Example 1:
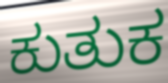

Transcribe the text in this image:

ಕುತುಕ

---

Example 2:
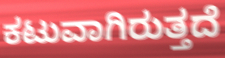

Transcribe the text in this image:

ಕಟುವಾಗಿರುತ್ತದೆ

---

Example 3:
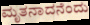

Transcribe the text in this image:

ಮೃತನಾದನೆಂದು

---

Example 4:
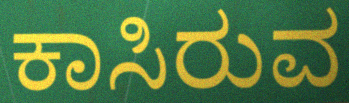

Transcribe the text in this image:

ಕಾಸಿರುವ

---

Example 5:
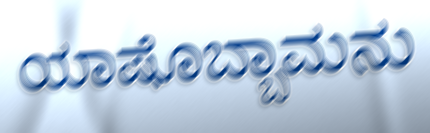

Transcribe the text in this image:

ಯಾಷೊಬ್ಬಾಮನು